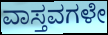
ವಾಸ್ತವಗಳೇ